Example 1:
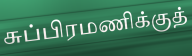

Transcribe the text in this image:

சுப்பிரமணிக்குத்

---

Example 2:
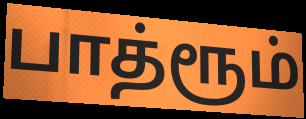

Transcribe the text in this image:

பாத்ரூம்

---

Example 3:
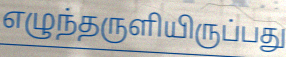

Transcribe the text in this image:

எழுந்தருளியிருப்பது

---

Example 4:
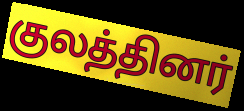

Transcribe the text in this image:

குலத்தினர்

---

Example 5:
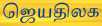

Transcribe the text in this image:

ஜெயதிலக